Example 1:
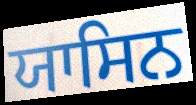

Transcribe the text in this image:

ਯਾਸਿਨ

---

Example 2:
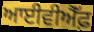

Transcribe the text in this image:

ਆਈਵੀਐੱਫ਼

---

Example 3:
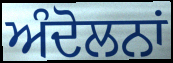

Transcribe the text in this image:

ਅੰਦੋਲਨਾਂ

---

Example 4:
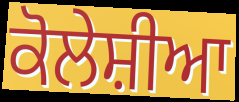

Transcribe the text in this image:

ਕੋਲੇਸ਼ੀਆ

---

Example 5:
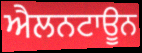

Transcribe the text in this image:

ਐਲਨਟਾਊਨ